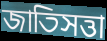
জাতিসত্তা